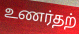
உணர்தற்